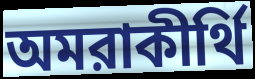
অমরাকীর্থি